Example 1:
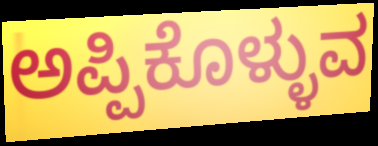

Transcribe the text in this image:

ಅಪ್ಪಿಕೊಳ್ಳುವ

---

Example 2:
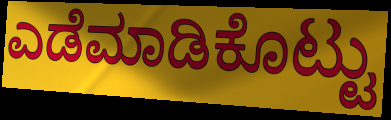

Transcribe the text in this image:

ಎಡೆಮಾಡಿಕೊಟ್ಟು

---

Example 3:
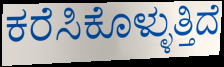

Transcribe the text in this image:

ಕರೆಸಿಕೊಳ್ಳುತ್ತಿದೆ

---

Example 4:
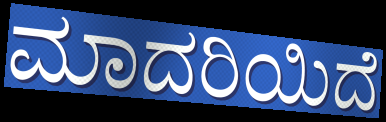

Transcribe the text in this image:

ಮಾದರಿಯಿದೆ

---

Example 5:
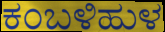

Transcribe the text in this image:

ಕಂಬಳಿಹುಳ